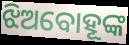
ଝିଅବୋହୂଙ୍କ